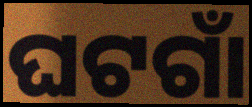
ଘଟଗାଁ